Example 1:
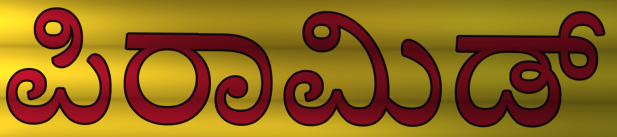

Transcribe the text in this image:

ಪಿರಾಮಿಡ್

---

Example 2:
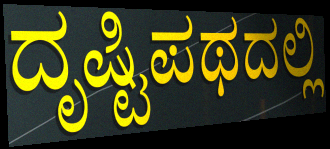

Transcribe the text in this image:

ದೃಷ್ಟಿಪಥದಲ್ಲಿ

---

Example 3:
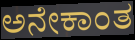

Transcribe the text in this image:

ಅನೇಕಾಂತ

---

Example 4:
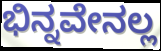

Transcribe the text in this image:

ಭಿನ್ನವೇನಲ್ಲ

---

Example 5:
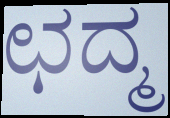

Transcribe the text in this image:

ಛದ್ಮ